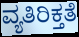
ವ್ಯತಿರಿಕ್ತತೆ